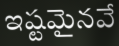
ఇష్టమైనవే